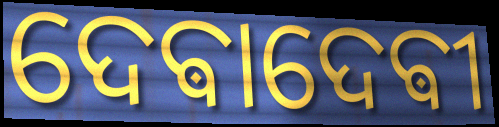
ଦେଵାଦେଵୀ